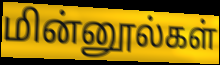
மின்னூல்கள்